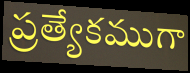
ప్రత్యేకముగా